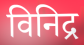
विनिद्र